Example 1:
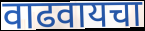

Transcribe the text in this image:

वाढवायचा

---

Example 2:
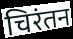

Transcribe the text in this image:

चिरंतन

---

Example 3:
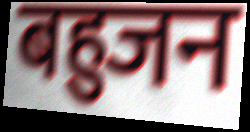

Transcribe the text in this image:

बहुजन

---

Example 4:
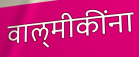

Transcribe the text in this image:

वाल्मीकींना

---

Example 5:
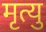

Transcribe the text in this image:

मृत्यु